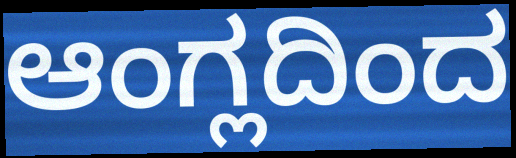
ಆಂಗ್ಲದಿಂದ